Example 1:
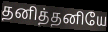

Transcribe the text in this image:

தனித்தனியே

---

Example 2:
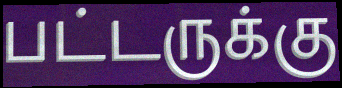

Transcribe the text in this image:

பட்டருக்கு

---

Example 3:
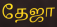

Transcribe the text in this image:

தேஜா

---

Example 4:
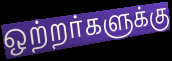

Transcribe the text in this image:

ஒற்றர்களுக்கு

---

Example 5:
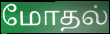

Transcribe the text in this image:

மோதல்